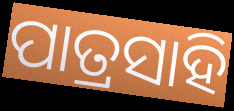
ପାତ୍ରସାହି